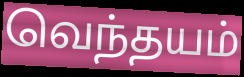
வெந்தயம்